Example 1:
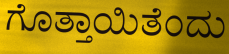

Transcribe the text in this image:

ಗೊತ್ತಾಯಿತೆಂದು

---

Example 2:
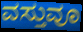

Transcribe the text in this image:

ವಸ್ತುವೂ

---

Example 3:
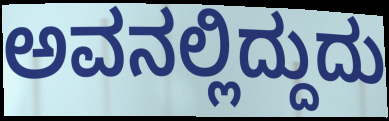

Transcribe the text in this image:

ಅವನಲ್ಲಿದ್ದುದು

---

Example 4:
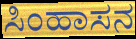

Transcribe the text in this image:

ಸಿಂಹಾಸನ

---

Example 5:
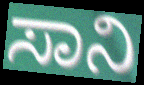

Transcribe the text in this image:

ಸಾನಿ